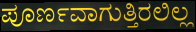
ಪೂರ್ಣವಾಗುತ್ತಿರಲಿಲ್ಲ